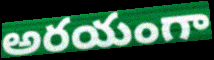
అరయంగా